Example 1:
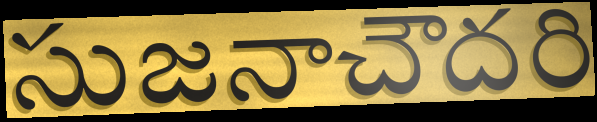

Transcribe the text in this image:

సుజనాచౌదరి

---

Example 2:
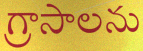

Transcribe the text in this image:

గ్రాసాలను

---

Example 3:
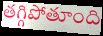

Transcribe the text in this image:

తగ్గిపోతూంది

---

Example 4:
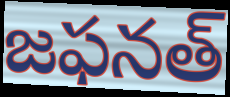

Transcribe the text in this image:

జఫనత్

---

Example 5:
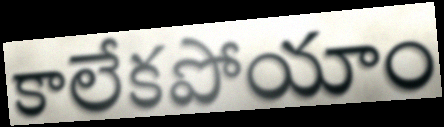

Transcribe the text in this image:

కాలేకపోయాం